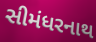
સીમંધરનાથ